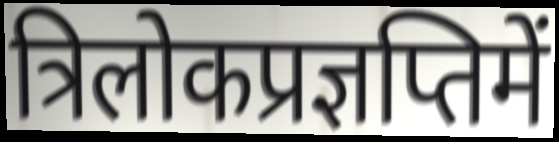
त्रिलोकप्रज्ञप्तिमें